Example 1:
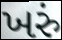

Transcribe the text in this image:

ખરું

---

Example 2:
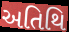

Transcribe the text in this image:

અતિથિ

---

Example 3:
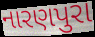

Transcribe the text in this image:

નારણપુરા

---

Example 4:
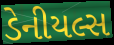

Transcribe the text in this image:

ડેનીયલ્સ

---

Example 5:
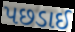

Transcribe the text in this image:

પછડાઈ